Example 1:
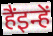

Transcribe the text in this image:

हैंइन्हें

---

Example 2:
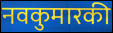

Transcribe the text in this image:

नवकुमारकी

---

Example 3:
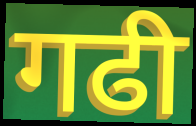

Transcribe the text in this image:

गढी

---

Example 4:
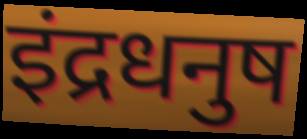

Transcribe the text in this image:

इंद्रधनुष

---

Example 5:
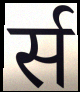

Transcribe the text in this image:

र्स